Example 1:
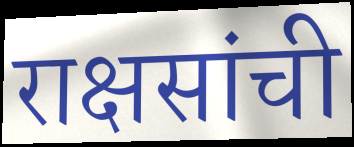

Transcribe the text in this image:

राक्षसांची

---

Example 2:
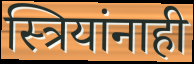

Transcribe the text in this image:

स्त्रियांनाही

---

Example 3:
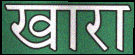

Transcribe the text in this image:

खारा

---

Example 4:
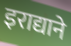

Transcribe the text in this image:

इराद्याने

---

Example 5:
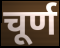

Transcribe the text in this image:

चूर्ण